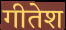
गीतेश